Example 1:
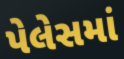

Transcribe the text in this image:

પેલેસમાં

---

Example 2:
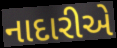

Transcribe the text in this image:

નાદારીએ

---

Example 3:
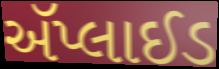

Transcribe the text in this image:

ઍપ્લાઈડ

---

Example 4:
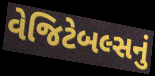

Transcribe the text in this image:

વેજિટેબલ્સનું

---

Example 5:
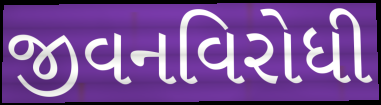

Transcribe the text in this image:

જીવનવિરોધી